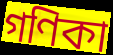
গণিকা